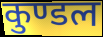
कुण्डल